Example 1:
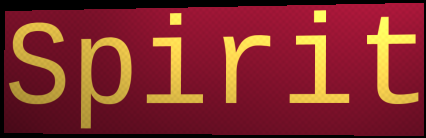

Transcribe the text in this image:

Spirit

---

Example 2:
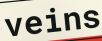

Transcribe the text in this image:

veins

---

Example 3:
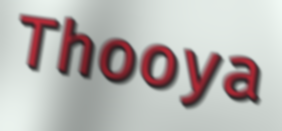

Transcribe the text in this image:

Thooya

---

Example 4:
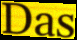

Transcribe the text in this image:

Das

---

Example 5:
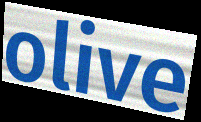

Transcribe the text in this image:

olive